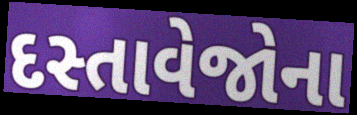
દસ્તાવેજોના